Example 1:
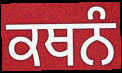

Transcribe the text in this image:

ਕਥਨੰ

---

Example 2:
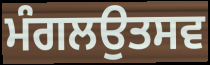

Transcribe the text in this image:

ਮੰਗਲਉਤਸਵ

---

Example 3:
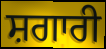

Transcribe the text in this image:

ਸ਼ਗਾਰੀ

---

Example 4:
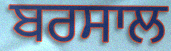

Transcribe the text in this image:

ਬਰਸਾਲ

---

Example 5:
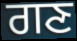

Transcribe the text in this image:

ਗਣ